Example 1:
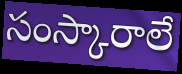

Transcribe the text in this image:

సంస్కారాలే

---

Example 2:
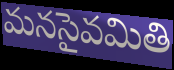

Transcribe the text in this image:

మనసైవమితి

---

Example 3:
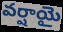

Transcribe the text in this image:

వర్షాయై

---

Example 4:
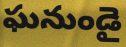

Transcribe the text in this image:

ఘనుండై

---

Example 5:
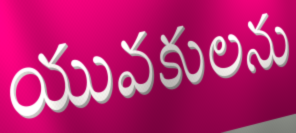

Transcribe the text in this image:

యువకులను